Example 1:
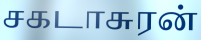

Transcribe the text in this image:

சகடாசுரன்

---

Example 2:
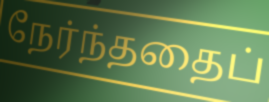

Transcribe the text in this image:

நேர்ந்ததைப்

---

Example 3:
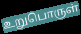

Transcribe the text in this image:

உறுபொருள்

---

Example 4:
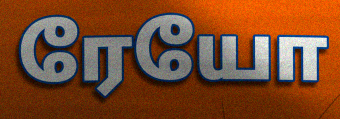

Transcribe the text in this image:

ரேயோ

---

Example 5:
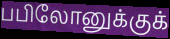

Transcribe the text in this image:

பபிலோனுக்குக்